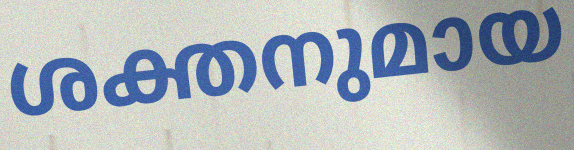
ശക്തനുമായ